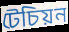
টেচিয়ন